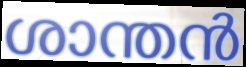
ശാന്തൻ